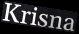
Krisna